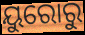
ୟୁରୋରୁ